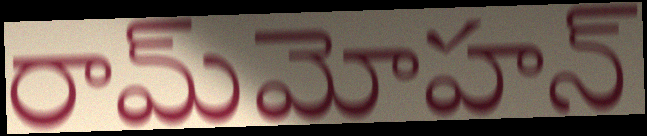
రామ్‌మోహన్